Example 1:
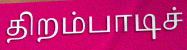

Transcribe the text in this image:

திறம்பாடிச்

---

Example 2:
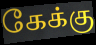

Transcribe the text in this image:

கேக்கு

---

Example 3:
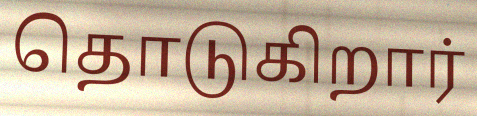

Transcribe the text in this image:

தொடுகிறார்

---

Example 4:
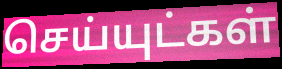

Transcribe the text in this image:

செய்யுட்கள்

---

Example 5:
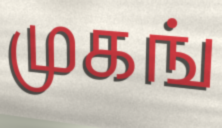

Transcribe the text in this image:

முகங்